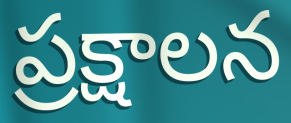
ప్రక్షాలన